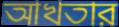
আখতার